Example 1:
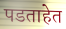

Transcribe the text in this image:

पडताहेत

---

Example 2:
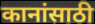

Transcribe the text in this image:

कानांसाठी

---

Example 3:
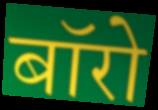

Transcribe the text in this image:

बॉरो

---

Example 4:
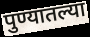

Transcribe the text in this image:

पुण्यातल्या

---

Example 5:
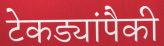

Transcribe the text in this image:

टेकड्यांपैकी